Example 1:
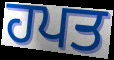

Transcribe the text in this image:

ਹਪਤ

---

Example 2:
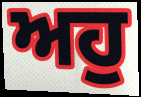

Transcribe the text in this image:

ਅਹੁ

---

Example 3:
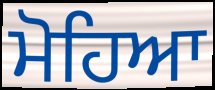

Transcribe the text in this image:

ਮੋਹਿਆ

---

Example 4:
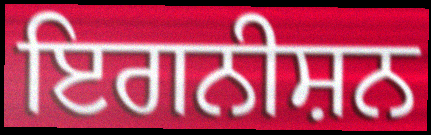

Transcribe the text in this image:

ਇਗਨੀਸ਼ਨ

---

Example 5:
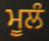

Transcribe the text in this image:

ਮੂਲੰ